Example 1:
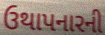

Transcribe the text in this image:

ઉથાપનારની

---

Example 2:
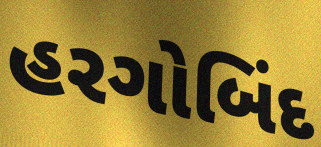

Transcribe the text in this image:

હરગોબિંદ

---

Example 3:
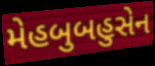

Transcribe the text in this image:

મેહબુબહુસેન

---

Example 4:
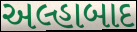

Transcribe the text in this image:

અલ્હાબાદ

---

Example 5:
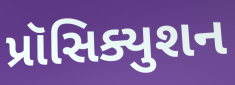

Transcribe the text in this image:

પ્રૉસિક્યુશન